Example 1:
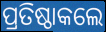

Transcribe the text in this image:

ପ୍ରତିଷ୍ଠାକଲେ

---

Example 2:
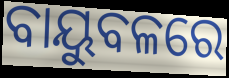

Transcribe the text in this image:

ବାୟୁବଳରେ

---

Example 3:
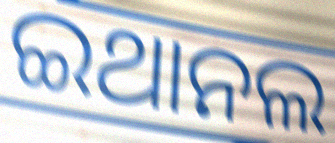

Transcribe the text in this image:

ଇଥାନଲ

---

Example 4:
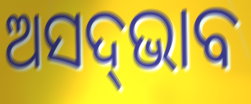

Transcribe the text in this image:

ଅସଦ୍‌ଭାବ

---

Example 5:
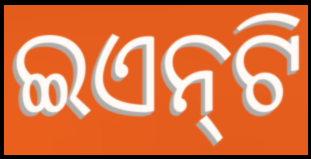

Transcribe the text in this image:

ଇଏନ୍‌ଟି